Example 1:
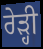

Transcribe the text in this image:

ਰੇੜ੍ਹੀ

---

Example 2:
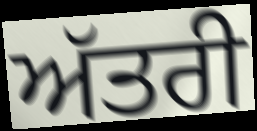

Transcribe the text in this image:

ਅੱਤਰੀ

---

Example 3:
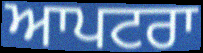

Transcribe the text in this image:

ਆਪਟਰਾ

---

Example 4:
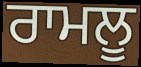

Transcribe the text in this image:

ਰਾਮਲੂ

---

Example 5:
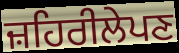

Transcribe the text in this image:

ਜ਼ਹਿਰੀਲੇਪਣ